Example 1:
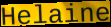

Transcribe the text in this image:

Helaine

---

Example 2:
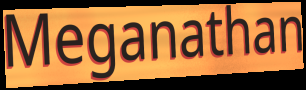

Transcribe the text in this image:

Meganathan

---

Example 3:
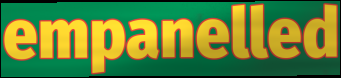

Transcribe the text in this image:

empanelled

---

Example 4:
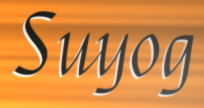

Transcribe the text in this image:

Suyog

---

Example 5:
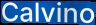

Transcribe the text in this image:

Calvino